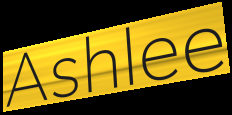
Ashlee